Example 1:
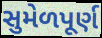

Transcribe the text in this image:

સુમેળપૂર્ણ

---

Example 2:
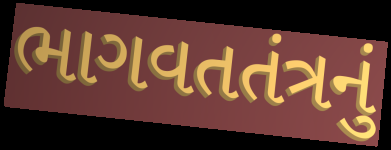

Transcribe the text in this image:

ભાગવતતંત્રનું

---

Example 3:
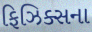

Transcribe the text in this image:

ફિઝિક્સના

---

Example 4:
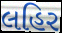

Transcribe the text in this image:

લહિર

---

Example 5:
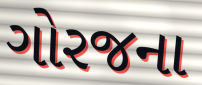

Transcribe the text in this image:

ગોરજના